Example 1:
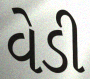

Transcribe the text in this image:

વેડી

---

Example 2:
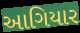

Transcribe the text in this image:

આગિયાર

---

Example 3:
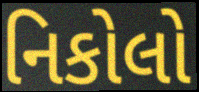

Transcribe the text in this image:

નિકોલો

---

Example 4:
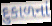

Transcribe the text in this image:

દુકાળનાં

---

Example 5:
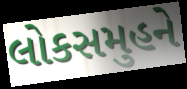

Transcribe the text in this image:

લોકસમુહને